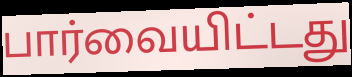
பார்வையிட்டது